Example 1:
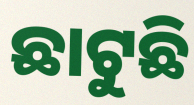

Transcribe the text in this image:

ଛାଟୁଛି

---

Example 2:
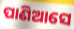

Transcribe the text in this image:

ପାଣିଆସେ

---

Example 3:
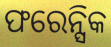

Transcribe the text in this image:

ଫରେନ୍ସିକ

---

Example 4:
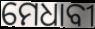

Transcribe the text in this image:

ମେଧାବୀ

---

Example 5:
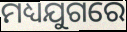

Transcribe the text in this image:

ମଧ୍ୟଯୁଗରେ